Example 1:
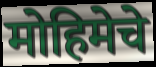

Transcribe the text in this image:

मोहिमेचे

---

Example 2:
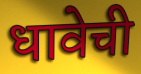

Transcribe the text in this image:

धावेची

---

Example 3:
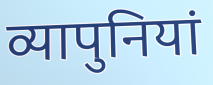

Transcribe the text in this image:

व्यापुनियां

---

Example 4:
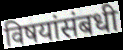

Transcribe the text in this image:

विषयांसंबधी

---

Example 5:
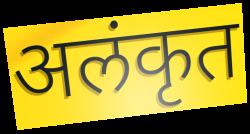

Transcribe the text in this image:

अलंकृत